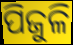
ପିଜୁଳି